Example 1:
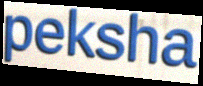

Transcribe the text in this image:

peksha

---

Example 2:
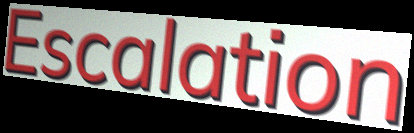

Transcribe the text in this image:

Escalation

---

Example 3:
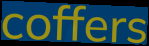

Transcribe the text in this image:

coffers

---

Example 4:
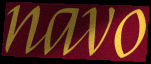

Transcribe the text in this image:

navo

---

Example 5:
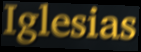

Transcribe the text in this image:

Iglesias